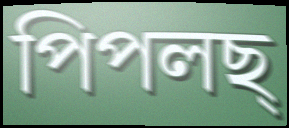
পিপলছ্